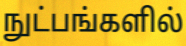
நுட்பங்களில்